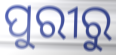
ପୁରୀରୁ